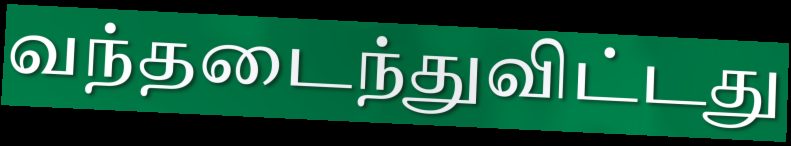
வந்தடைந்துவிட்டது